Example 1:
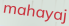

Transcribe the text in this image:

mahayaj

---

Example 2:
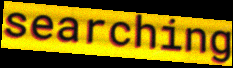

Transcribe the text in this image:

searching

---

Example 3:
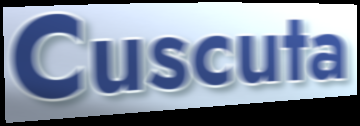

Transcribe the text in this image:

Cuscuta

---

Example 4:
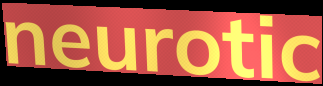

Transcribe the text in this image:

neurotic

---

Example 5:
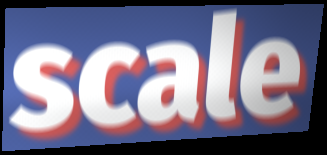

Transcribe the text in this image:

scale